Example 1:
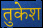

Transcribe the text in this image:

तुकेश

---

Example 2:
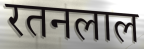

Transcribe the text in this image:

रतनलाल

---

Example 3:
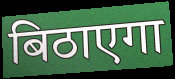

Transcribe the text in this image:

बिठाएगा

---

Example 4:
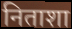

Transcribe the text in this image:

निताशा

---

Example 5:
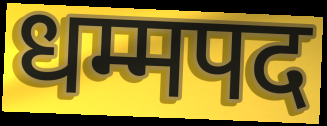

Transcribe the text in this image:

धम्मपद